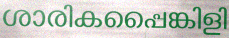
ശാരികപ്പൈങ്കിളി